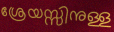
ശ്രേയസ്സിനുള്ള